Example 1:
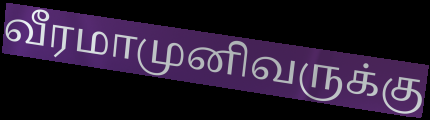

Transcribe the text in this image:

வீரமாமுனிவருக்கு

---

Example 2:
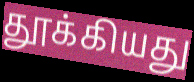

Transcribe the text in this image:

தூக்கியது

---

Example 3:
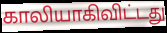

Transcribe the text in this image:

காலியாகிவிட்டது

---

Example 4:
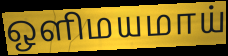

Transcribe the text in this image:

ஒளிமயமாய்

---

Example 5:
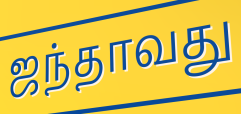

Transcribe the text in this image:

ஜந்தாவது